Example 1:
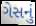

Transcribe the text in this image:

ગેસનું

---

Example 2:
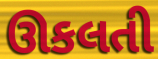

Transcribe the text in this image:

ઊકલતી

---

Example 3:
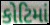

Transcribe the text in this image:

કોટિમાં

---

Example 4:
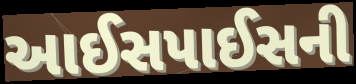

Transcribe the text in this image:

આઈસપાઈસની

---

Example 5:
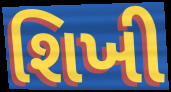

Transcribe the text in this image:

શિખી